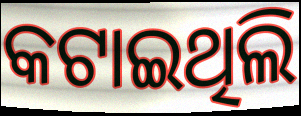
କଟାଇଥିଲି